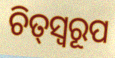
ଚିତ୍‌ସ୍ୱରୂପ